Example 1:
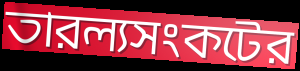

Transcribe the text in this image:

তারল্যসংকটের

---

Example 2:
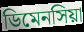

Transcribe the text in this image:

ডিমেনসিয়া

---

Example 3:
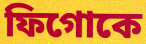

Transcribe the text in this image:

ফিগোকে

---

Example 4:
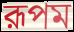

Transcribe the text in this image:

রূপম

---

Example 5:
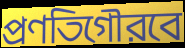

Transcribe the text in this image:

প্রণতিগৌরবে